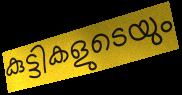
കുട്ടികളുടെയും